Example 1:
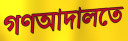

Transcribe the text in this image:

গণআদালতে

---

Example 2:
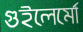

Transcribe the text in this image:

গুইলের্মো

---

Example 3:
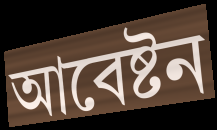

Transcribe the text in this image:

আবেষ্টন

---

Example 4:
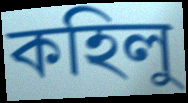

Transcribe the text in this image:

কহিলু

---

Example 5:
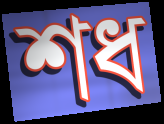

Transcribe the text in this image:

শধ